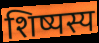
शिष्यस्य